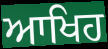
ਆਖਿਹ